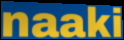
naaki